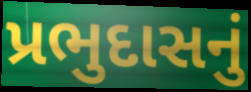
પ્રભુદાસનું